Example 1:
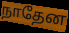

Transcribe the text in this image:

நாதேன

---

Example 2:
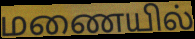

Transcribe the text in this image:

மணையில்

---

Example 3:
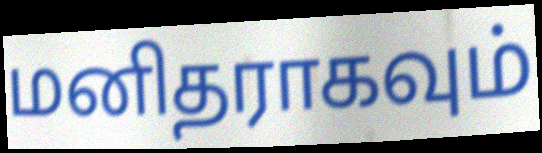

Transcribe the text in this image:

மனிதராகவும்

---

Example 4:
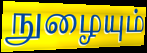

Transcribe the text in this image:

நுழையும்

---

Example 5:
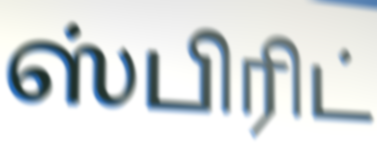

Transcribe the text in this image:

ஸ்பிரிட்